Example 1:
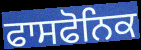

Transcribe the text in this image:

ਫਾਸਫੋਨਿਕ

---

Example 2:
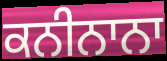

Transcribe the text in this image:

ਕਨੀਨਾਨਾ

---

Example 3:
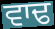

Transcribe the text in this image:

ਵਾਢ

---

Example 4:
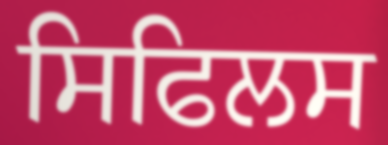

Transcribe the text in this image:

ਸਿਫਿਲਸ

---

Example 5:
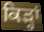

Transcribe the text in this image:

ਕਿੜ੍ਹਾਂ